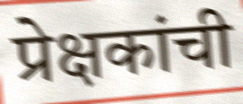
प्रेक्षकांची